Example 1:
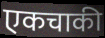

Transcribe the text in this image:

एकचाकी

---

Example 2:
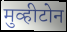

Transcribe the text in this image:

मुव्हीटोन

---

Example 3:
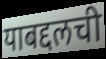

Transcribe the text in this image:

याबद्दलची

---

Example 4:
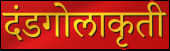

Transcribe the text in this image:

दंडगोलाकृती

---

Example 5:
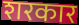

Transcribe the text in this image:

शरकार